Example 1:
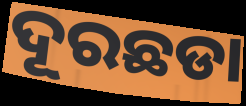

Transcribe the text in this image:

ଦୂରଛଡା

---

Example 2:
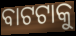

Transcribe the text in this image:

ବାଟଟାକୁ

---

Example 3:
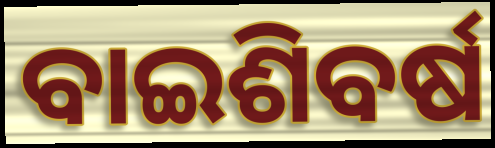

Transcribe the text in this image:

ବାଇଶିବର୍ଷ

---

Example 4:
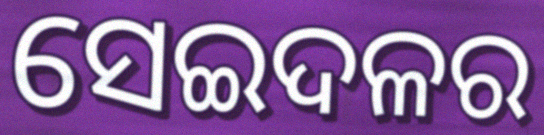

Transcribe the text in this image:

ସେଇଦଳର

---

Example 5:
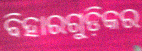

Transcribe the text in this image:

ବିହାରଗୁଡ଼ିକର